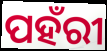
ପହଁରୀ